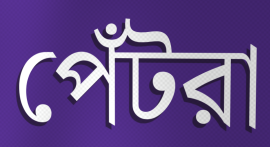
পেঁটরা